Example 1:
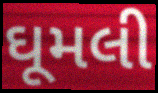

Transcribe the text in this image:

ઘૂમલી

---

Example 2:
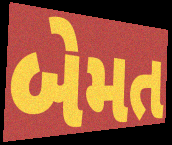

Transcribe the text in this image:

બેમત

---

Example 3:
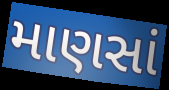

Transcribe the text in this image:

માણસાં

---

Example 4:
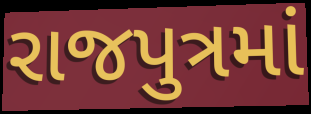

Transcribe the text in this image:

રાજપુત્રમાં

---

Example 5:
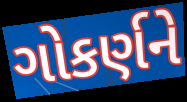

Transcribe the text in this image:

ગોકર્ણને